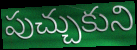
పుచ్చుకుని